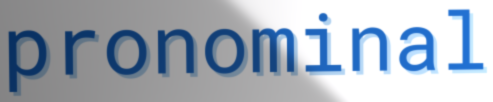
pronominal